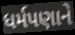
ધર્મપણાને